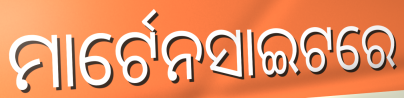
ମାର୍ଟେନସାଇଟରେ